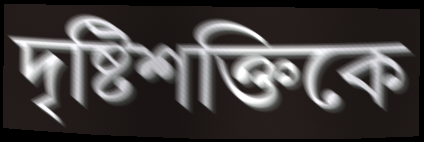
দৃষ্টিশক্তিকে